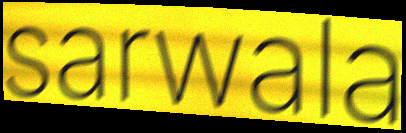
sarwala